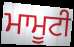
ਮਾਮੂਟੀ